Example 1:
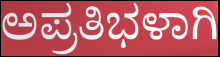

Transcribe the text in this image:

ಅಪ್ರತಿಭಳಾಗಿ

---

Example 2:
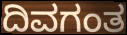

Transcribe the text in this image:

ದಿವಗಂತ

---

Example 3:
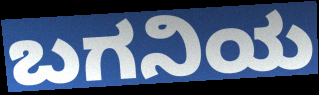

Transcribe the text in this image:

ಬಗನಿಯ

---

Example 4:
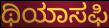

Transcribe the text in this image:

ಥಿಯಾಸಫಿ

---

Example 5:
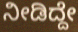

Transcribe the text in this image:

ನೀಡಿದ್ದೇ